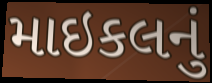
માઇકલનું